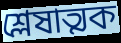
শ্লেষাত্মক